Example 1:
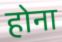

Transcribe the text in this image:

होना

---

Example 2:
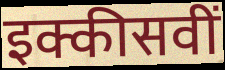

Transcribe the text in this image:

इक्कीसवीं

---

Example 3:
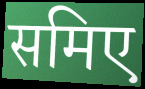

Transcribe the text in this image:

समिए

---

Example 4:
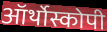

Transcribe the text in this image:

ऑर्थोस्कोपी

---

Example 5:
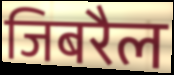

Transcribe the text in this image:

जिबरैल